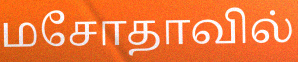
மசோதாவில்